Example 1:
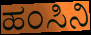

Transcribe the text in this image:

ಹಂಸಿನಿ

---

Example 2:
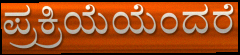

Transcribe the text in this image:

ಪ್ರಕ್ರಿಯೆಯೆಂದರೆ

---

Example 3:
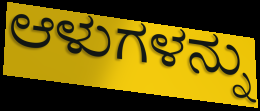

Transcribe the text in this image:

ಆಳುಗಳನ್ನು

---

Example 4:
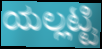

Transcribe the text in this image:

ಯಲ್ಲಟ್ಟಿ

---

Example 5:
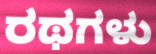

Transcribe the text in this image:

ರಥಗಳು